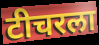
टीचरला